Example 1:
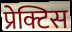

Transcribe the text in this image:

प्रेक्टिस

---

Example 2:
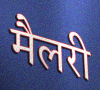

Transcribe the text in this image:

मैलरी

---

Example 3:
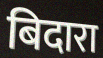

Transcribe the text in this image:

बिदारा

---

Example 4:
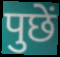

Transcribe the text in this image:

पुछें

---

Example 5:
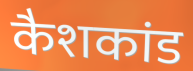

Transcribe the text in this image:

कैशकांड